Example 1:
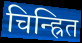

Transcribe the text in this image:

चिन्ह्रित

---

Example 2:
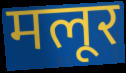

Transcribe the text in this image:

मलूर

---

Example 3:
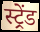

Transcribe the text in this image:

स्ट्रेंड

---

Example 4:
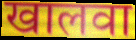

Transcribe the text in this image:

खालवा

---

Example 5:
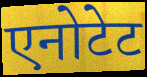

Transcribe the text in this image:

एनोटेट